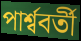
পাৰ্শ্ববৰ্তী